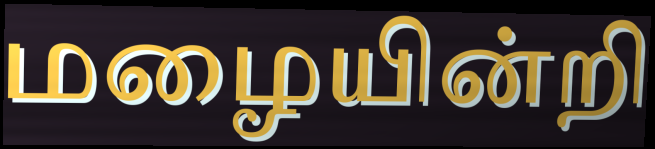
மழையின்றி